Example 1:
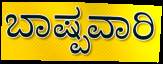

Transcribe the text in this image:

ಬಾಷ್ಪವಾರಿ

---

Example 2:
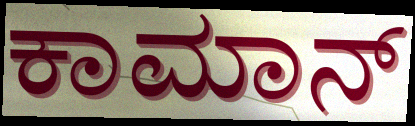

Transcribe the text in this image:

ಕಾಮಾನ್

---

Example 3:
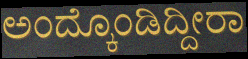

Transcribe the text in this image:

ಅಂದ್ಕೊಂಡಿದ್ದೀರಾ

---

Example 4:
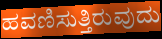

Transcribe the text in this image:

ಹವಣಿಸುತ್ತಿರುವುದು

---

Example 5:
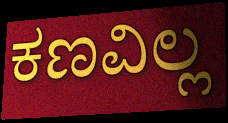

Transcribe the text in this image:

ಕಣವಿಲ್ಲ